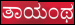
ತಾಯಂಥ